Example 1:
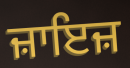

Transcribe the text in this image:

ਜ਼ਾਇਜ਼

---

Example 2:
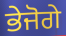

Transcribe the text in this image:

ਭੇਜੋਗੇ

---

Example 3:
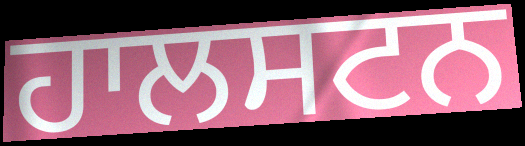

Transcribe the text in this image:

ਹਾਲਸਟਨ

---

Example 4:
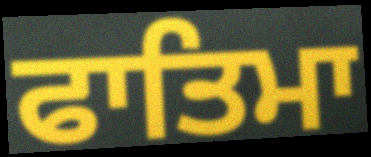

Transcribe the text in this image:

ਫਾਤਿਮਾ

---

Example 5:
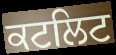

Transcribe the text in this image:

ਕਟਲਿਟ